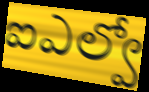
ఐఎల్వో